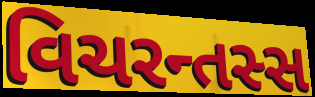
વિચરન્તસ્સ